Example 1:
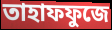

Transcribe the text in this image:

তাহাফফুজে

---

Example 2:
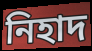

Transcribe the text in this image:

নিহাদ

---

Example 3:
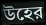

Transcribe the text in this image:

উহের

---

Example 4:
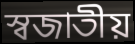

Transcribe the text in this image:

স্বজাতীয়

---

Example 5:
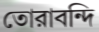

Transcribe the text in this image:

তোরাবন্দি